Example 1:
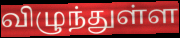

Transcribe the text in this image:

விழுந்துள்ள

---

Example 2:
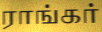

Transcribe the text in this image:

ராங்கர்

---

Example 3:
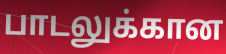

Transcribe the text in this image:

பாடலுக்கான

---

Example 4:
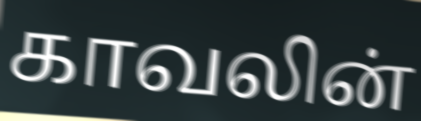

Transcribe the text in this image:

காவலின்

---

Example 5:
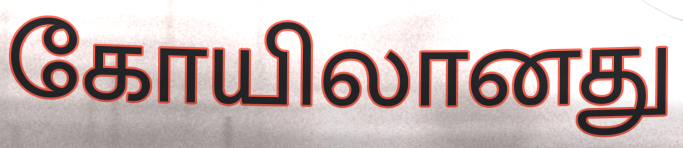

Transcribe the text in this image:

கோயிலானது